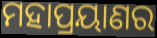
ମହାପ୍ରୟାଣର